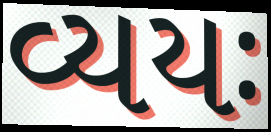
વ્યયઃ